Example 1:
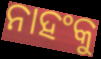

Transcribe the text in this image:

ନାହଂକୁ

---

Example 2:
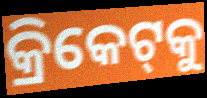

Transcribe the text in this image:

କ୍ରିକେଟ୍‌କୁ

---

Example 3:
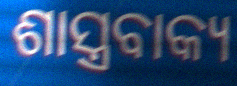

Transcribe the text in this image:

ଶାସ୍ତ୍ରବାକ୍ୟ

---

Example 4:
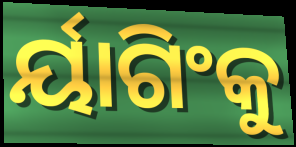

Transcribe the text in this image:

ର୍ୟାଗିଂକୁ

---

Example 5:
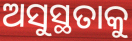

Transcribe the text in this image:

ଅସୁସ୍ଥତାକୁ